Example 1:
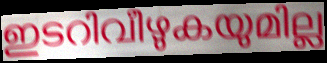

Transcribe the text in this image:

ഇടറിവീഴുകയുമില്ല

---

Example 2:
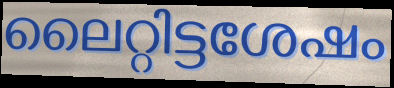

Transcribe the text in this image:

ലൈറ്റിട്ടശേഷം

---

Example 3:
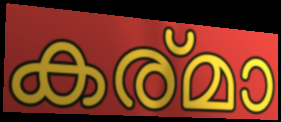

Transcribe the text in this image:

കര്മാ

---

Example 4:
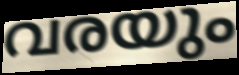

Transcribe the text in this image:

വരയും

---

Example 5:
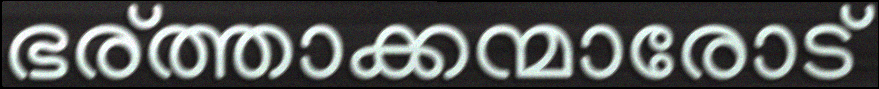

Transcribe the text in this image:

ഭര്ത്താക്കന്മാരോട്